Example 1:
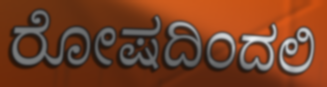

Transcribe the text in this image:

ರೋಷದಿಂದಲಿ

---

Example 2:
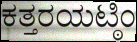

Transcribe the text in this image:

ಕತ್ತರಯಟ್ಠಿಂ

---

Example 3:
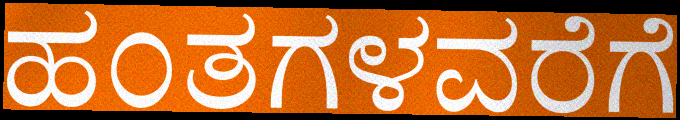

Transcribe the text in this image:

ಹಂತಗಳವರೆಗೆ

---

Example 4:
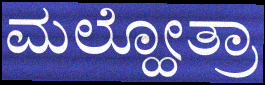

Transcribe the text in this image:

ಮಲ್ಹೋತ್ರಾ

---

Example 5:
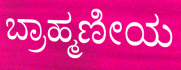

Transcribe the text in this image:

ಬ್ರಾಹ್ಮಣೀಯ